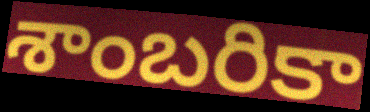
శాంబరికా